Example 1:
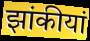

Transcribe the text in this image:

झांकीयां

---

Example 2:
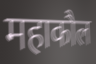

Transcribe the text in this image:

महाकौल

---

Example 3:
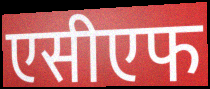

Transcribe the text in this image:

एसीएफ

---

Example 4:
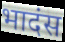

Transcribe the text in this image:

भादंस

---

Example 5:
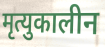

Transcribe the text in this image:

मृत्युकालीन